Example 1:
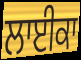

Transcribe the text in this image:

ਲਾਈਕਾ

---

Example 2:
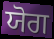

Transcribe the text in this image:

ਯੋਗ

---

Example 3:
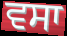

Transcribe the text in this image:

ਵਸਾ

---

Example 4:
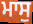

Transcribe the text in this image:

ਮਾਸੁ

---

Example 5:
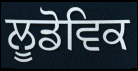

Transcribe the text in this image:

ਲੂਡੋਵਿਕ